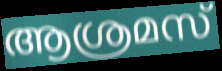
ആശ്രമസ്